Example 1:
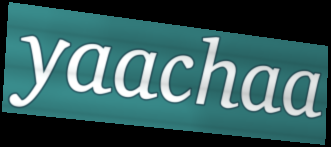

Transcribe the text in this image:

yaachaa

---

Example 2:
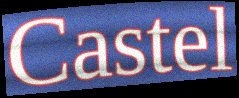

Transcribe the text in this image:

Castel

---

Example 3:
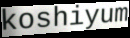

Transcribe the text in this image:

koshiyum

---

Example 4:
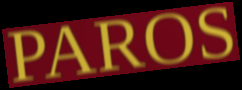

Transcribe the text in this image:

PAROS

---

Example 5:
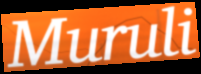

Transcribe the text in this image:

Muruli